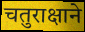
चतुराक्षाने